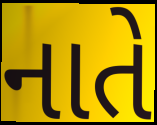
નાતે